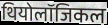
थियोलॉजिकल